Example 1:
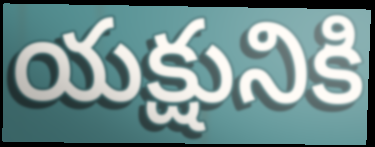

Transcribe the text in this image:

యక్షునికి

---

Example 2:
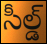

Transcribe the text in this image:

సీల్డ్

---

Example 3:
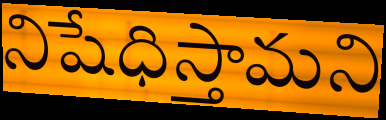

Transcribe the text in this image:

నిషేధిస్తామని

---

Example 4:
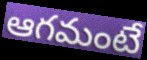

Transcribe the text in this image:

ఆగమంటే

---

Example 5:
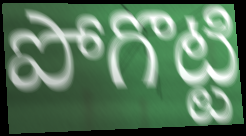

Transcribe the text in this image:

పోగొట్టి